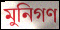
মুনিগণ